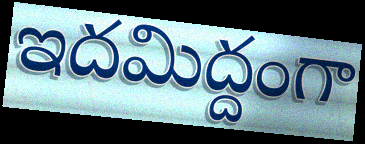
ఇదమిద్దంగా